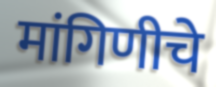
मांगिणीचे